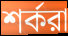
শর্করা